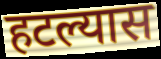
हटल्यास